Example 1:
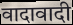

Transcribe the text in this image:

वादावादी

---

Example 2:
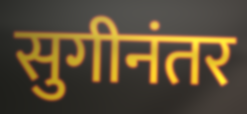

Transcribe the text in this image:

सुगीनंतर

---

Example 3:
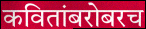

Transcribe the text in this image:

कवितांबरोबरच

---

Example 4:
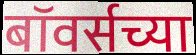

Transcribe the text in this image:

बॉवर्सच्या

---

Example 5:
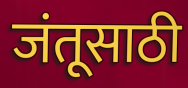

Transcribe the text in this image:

जंतूसाठी